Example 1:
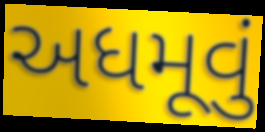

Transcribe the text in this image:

અધમૂવું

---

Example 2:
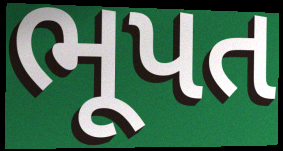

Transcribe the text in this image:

ભૂપત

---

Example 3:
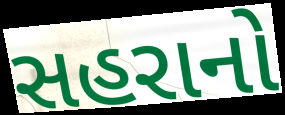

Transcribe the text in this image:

સહરાનો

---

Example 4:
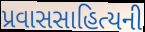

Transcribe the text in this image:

પ્રવાસસાહિત્યની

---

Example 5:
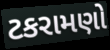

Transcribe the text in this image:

ટકરામણો